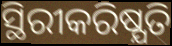
ସ୍ଥିରୀକରିଷ୍ଯତି